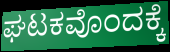
ಘಟಕವೊಂದಕ್ಕೆ